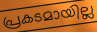
പ്രകടമായില്ല